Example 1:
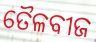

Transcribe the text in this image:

ତୈଳବୀଜ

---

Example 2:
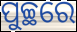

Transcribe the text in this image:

ପୁଚ୍ଛରେ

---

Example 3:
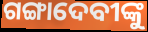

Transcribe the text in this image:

ଗଙ୍ଗାଦେବୀଙ୍କୁ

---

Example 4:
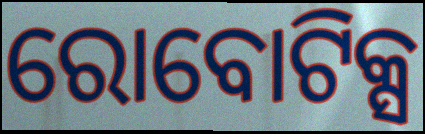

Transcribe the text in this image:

ରୋବୋଟିକ୍ସ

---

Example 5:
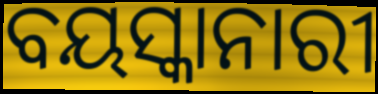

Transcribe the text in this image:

ବୟସ୍କାନାରୀ